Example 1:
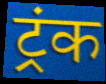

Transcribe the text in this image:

ट्रंक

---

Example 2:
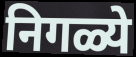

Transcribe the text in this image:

निगळ्ये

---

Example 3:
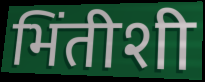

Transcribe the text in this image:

भिंतीशी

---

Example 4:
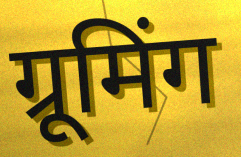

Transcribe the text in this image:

ग्रूमिंग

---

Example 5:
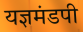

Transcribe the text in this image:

यज्ञमंडपी